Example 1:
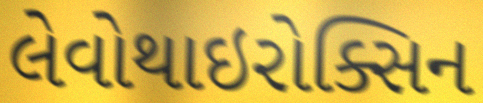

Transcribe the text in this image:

લેવોથાઇરોક્સિન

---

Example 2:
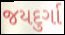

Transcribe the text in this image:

જયદુર્ગા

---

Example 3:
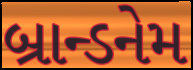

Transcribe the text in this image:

બ્રાન્ડનેમ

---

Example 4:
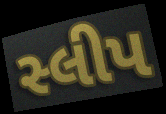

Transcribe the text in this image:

સ્લીપ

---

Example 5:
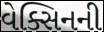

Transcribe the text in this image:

વેક્સિનની